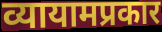
व्यायामप्रकार